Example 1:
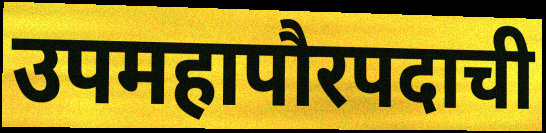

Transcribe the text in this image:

उपमहापौरपदाची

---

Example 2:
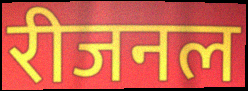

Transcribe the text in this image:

रीजनल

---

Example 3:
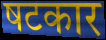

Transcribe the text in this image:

षटकार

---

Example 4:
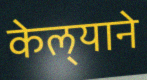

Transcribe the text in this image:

केल्याने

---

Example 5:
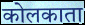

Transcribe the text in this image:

कोलकाता